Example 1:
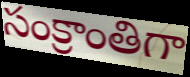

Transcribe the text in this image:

సంక్రాంతిగా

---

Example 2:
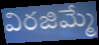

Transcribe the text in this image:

విరజిమ్మే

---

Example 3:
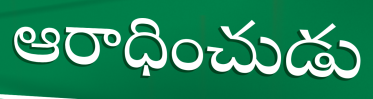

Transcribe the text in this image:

ఆరాధించుడు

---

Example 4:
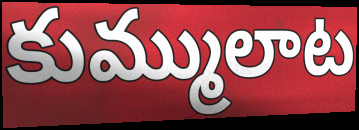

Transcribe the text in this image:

కుమ్ములాట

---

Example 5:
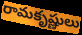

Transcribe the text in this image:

రామకృష్ణులు